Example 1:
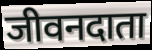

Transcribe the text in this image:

जीवनदाता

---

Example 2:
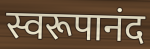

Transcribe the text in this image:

स्‍वरूपानंद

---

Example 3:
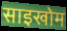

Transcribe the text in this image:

साइखोम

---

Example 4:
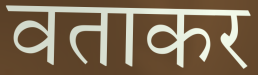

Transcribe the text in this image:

वताकर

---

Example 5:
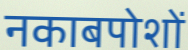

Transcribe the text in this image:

नकाबपोशों